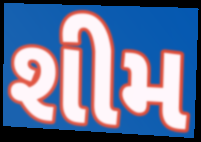
શીમ